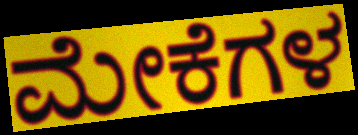
ಮೇಕೆಗಳ